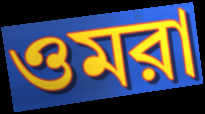
ওমরা